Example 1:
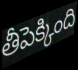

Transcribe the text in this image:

తీపెక్కింది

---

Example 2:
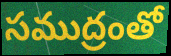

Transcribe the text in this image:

సముద్రంతో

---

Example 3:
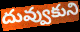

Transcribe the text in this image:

దువ్వుకుని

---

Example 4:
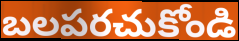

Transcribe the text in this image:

బలపరచుకోండి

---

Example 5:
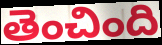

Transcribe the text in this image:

తెంచింది